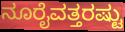
ನೂರೈವತ್ತರಷ್ಟು